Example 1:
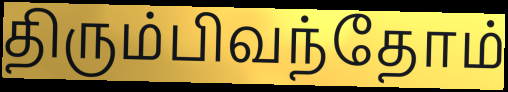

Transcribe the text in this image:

திரும்பிவந்தோம்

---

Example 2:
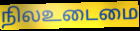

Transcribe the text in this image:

நிலஉடைமை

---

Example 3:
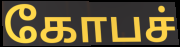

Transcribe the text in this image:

கோபச்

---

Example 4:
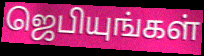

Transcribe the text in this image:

ஜெபியுங்கள்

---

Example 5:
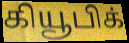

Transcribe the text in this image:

கியூபிக்